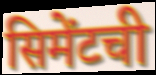
सिमेंटची